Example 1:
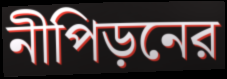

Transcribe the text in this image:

নীপিড়নের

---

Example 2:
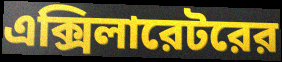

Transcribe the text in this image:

এক্সিলারেটরের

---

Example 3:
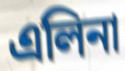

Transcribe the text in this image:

এলিনা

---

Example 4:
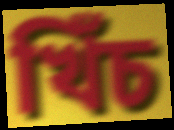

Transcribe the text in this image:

খিঁচ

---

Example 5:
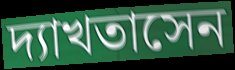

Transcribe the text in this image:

দ্যাখতাসেন